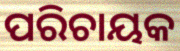
ପରିଚାୟକ